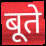
बूते